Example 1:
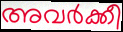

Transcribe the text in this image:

അവർക്കീ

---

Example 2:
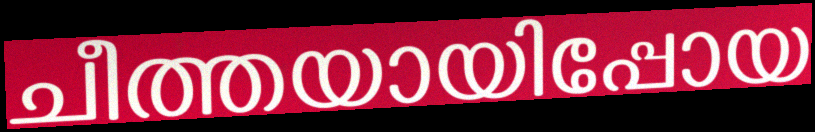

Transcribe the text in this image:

ചീത്തയായിപ്പോയ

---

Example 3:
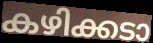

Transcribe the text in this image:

കഴിക്കടാ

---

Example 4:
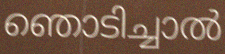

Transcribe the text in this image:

ഞൊടിച്ചാൽ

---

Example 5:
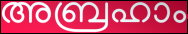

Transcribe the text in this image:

അബ്രഹാം